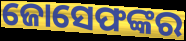
ଜୋସେଫଙ୍କର